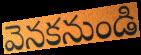
వెనకనుండి